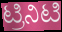
ಟ್ರಿನಿಟಿ